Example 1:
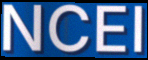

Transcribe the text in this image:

NCEI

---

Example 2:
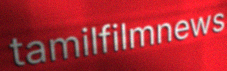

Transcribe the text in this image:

tamilfilmnews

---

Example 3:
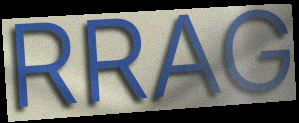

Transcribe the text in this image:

RRAG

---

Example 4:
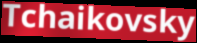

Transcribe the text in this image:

Tchaikovsky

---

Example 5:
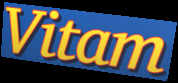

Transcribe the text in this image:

Vitam